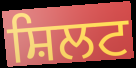
ਸ਼ਿਲਟ